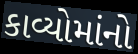
કાવ્યોમાંનો